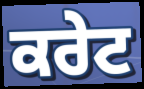
ਕਰੇਟ